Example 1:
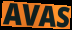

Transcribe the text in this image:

AVAS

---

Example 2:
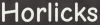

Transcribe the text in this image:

Horlicks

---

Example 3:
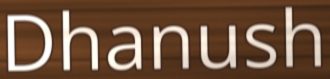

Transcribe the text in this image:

Dhanush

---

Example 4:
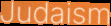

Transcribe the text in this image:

Judaism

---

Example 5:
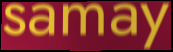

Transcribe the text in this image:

samay